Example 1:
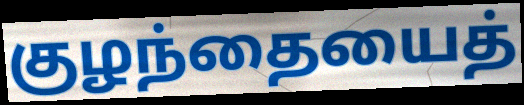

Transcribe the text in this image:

குழந்தையைத்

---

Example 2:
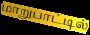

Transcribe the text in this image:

மாறுபாட்டில்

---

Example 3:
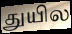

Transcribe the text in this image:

துயில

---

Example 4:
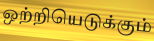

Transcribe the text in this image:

ஒற்றியெடுக்கும்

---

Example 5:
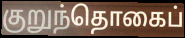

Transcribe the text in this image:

குறுந்தொகைப்